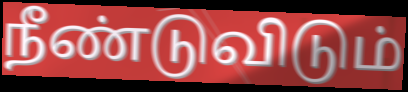
நீண்டுவிடும்